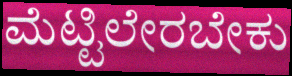
ಮೆಟ್ಟಿಲೇರಬೇಕು